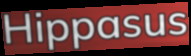
Hippasus